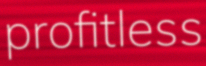
profitless